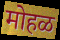
मोहळ